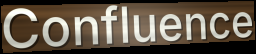
Confluence